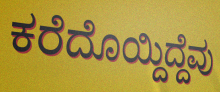
ಕರೆದೊಯ್ದಿದ್ದೆವು